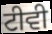
ਟੀਵੀ